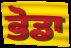
ਭੋਡਾ